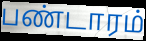
பண்டாரம்